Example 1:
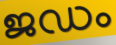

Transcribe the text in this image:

ജഡം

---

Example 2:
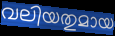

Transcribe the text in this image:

വലിയതുമായ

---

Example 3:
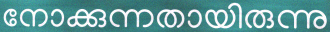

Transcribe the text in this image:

നോക്കുന്നതായിരുന്നു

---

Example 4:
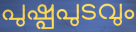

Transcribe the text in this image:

പുഷ്പപുടവും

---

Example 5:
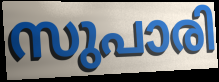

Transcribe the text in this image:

സുപാരി